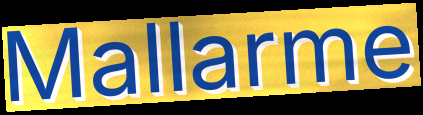
Mallarme